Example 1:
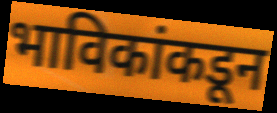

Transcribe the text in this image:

भाविकांकडून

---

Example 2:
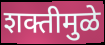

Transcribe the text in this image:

शक्तीमुळे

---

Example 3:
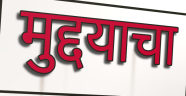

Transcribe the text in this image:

मुद्दयाचा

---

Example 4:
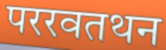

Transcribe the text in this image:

पररवतथन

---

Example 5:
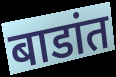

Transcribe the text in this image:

बाडांत